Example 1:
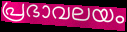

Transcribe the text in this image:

പ്രഭാവലയം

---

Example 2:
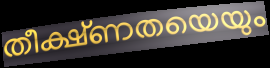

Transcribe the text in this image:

തീക്ഷ്ണതയെയും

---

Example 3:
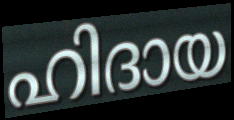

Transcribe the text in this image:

ഹിദായ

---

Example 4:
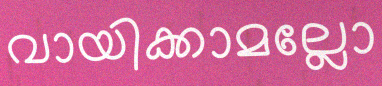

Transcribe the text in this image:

വായിക്കാമല്ലോ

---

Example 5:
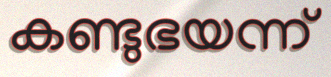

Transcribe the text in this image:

കണ്ടുഭയന്ന്